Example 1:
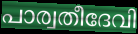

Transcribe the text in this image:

പാര്വതീദേവി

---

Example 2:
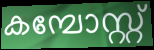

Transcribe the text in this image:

കമ്പോസ്റ്റ്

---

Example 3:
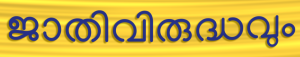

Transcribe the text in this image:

ജാതിവിരുദ്ധവും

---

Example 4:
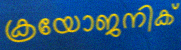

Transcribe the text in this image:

ക്രയോജനിക്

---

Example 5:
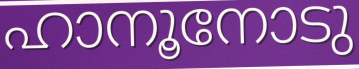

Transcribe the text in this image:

ഹാനൂനോടു